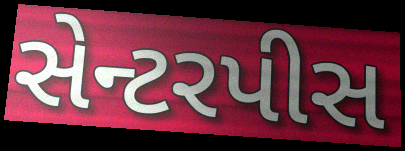
સેન્ટરપીસ